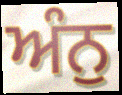
ਅੰਨੁ